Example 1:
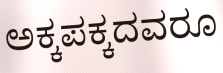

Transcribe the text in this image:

ಅಕ್ಕಪಕ್ಕದವರೂ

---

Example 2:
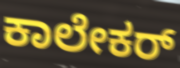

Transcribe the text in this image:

ಕಾಲೇಕರ್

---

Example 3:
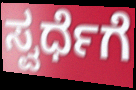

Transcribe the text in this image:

ಸ್ವರ್ಧೆಗೆ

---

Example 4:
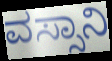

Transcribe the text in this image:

ವಸ್ಸಾನಿ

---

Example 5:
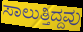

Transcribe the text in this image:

ಸಾಲುತ್ತಿದ್ದವು